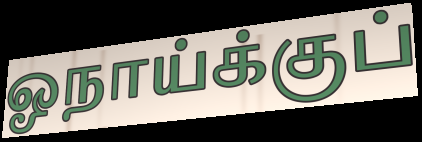
ஓநாய்க்குப்